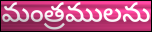
మంత్రములను